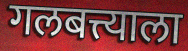
गलबत्त्याला